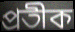
প্ৰতীক